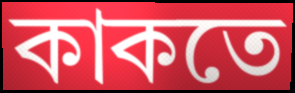
কাকতে